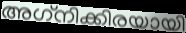
അഗ്‌നിക്കിരയായി